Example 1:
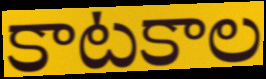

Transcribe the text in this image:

కాటకాల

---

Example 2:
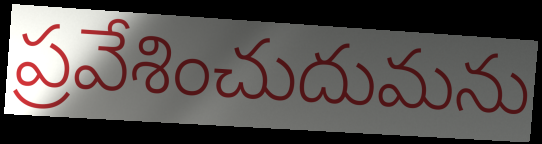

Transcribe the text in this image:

ప్రవేశించుదుమను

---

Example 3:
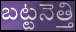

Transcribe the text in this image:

బట్టనెత్తి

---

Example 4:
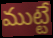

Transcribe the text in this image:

ముట్టే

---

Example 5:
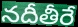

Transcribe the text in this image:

నదీతీరే